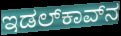
ಇಡಲ್‌ಕಾವ್‌ನ